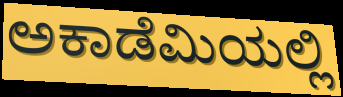
ಅಕಾಡೆಮಿಯಲ್ಲಿ